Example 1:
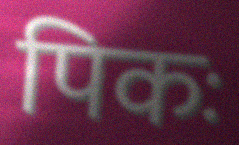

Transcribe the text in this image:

पिकः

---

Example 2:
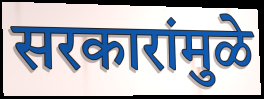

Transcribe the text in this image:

सरकारांमुळे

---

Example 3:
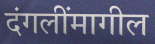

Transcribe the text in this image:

दंगलींमागील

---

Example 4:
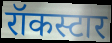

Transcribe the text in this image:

रॉकस्टार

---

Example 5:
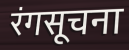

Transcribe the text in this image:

रंगसूचना